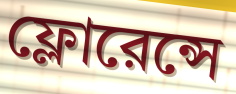
ফ্লোরেন্সে